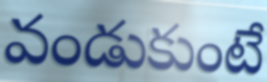
వండుకుంటే